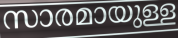
സാരമായുള്ള